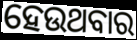
ହେଉଥବାର